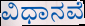
ವಿಧಾನವೆ